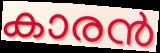
കാരൻ